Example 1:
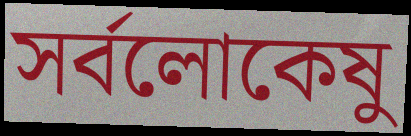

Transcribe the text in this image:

সর্বলোকেষু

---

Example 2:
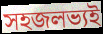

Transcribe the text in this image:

সহজলভ্যই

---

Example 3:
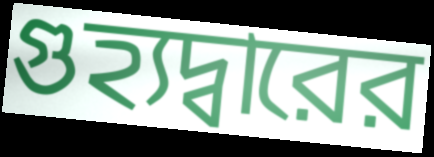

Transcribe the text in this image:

গুহ্যদ্বারের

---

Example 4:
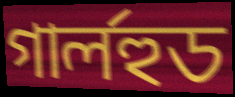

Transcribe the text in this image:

গার্লহুড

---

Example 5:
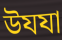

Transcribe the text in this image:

উযযা